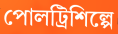
পোলট্রিশিল্পে